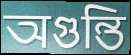
অগুন্তি